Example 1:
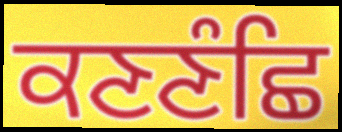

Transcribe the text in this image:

ਕਣਣੰਛਿ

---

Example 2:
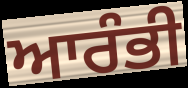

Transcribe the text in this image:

ਆਰੰਭੀ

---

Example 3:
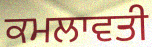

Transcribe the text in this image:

ਕਮਲਾਵਤੀ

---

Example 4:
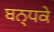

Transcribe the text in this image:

ਬਨ੍ਧਕੇ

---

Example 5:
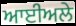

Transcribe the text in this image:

ਆਈਅਲੇ